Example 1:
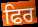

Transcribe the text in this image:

ਫਿਰ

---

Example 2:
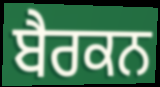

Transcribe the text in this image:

ਬੈਰਕਨ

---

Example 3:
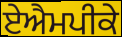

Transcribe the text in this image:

ਏਐਮਪੀਕੇ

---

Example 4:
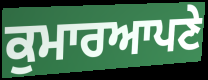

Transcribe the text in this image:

ਕੁਮਾਰਆਪਣੇ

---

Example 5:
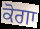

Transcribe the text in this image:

ਕੋਗਾ